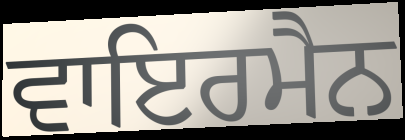
ਵਾਇਰਮੈਨ